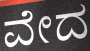
ವೇದ